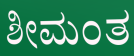
ಶೀಮಂತ